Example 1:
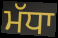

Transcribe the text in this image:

ਮੱਧਾ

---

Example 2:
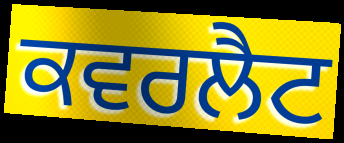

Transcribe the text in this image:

ਕਵਰਲੈਟ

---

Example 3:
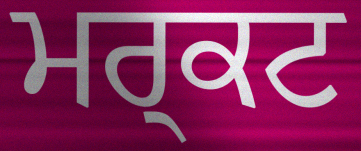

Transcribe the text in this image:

ਮਰ੍ਕਟ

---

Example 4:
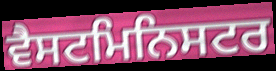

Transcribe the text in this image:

ਵੈਸਟਮਿਨਿਸਟਰ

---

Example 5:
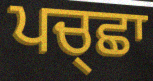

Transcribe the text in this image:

ਪਚ੍ਛਾ